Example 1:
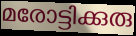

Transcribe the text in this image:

മരോട്ടിക്കുരു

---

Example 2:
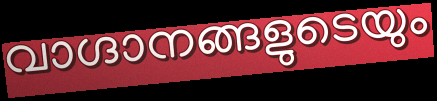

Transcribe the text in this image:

വാഗ്ദാനങ്ങളുടെയും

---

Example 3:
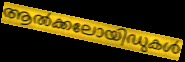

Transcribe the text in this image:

ആൽക്കലോയിഡുകൾ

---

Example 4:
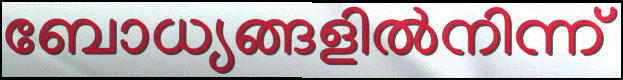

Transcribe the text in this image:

ബോധ്യങ്ങളിൽനിന്ന്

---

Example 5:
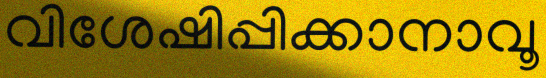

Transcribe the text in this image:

വിശേഷിപ്പിക്കാനാവൂ